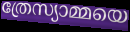
ത്രേസ്യാമ്മയെ